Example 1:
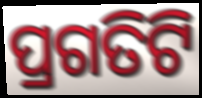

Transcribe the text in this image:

ପ୍ରଗତିଟି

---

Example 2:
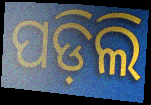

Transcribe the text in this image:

ପଡ଼ିଲି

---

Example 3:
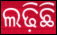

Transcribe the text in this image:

ଲଢ଼ିଛି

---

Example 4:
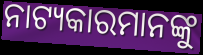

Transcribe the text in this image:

ନାଟ୍ଯକାରମାନଙ୍କୁ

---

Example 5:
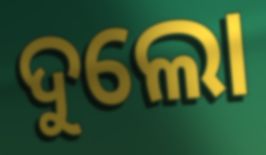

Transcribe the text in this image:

ଦୁଲୋ